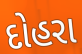
દોહરા